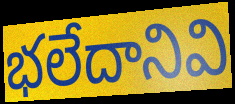
భలేదానివి